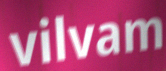
vilvam